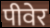
पीवेर